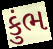
કુંભ